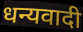
धन्यवादी